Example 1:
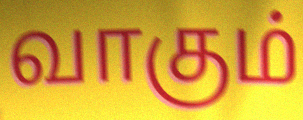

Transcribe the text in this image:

வாகும்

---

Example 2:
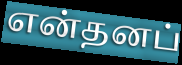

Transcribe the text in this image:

என்தனப்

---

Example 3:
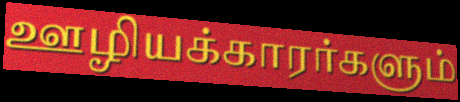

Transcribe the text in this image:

ஊழியக்காரர்களும்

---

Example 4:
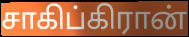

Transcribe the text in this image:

சாகிப்கிரான்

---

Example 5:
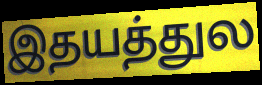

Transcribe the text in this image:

இதயத்துல